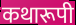
कथारूपी